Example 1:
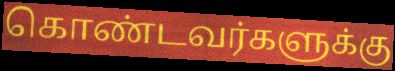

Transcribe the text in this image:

கொண்டவர்களுக்கு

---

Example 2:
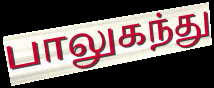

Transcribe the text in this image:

பாலுகந்து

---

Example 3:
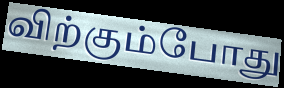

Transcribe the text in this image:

விற்கும்போது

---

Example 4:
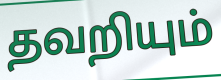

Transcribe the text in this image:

தவறியும்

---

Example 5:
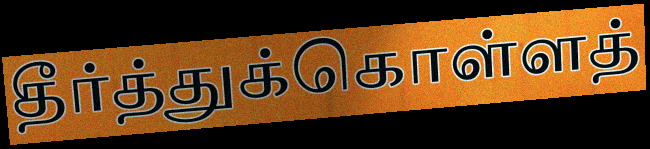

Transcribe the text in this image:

தீர்த்துக்கொள்ளத்